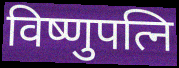
विष्णुपत्नि